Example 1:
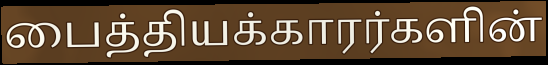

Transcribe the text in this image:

பைத்தியக்காரர்களின்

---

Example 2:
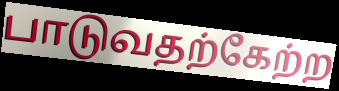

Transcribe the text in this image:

பாடுவதற்கேற்ற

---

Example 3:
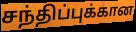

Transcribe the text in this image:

சந்திப்புக்கான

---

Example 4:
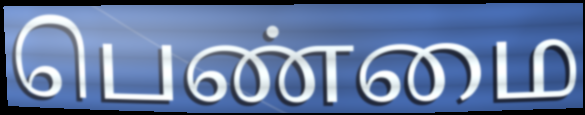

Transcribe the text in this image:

பெண்மை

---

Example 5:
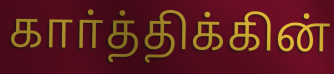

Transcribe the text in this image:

கார்த்திக்கின்